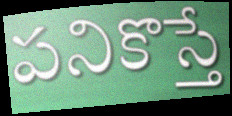
పనికొస్తే